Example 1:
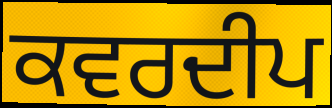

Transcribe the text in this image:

ਕਵਰਦੀਪ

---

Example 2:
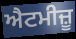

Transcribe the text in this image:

ਐਟਮੀਜ਼ੂ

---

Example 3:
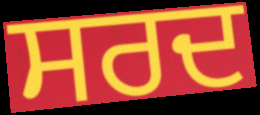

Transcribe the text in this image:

ਸਰਦ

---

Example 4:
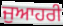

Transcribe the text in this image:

ਜੁਆਹਰੀ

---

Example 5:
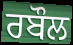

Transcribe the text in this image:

ਰਬੌਲ